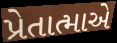
પ્રેતાત્માએ